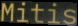
Mitis